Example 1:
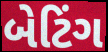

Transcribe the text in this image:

બેટિંગ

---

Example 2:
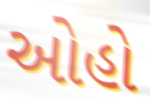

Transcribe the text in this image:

ઓહો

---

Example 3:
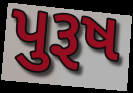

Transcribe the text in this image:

પુરૂષ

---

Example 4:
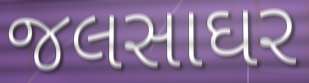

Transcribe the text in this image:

જલસાઘર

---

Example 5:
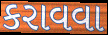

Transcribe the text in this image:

કરાવવા